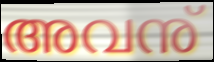
അവനു്